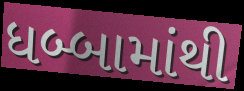
ધબ્બામાંથી